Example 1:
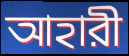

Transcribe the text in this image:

আহারী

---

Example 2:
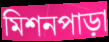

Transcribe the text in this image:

মিশনপাড়া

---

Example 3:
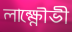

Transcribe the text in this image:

লাক্ষ্ণৌভী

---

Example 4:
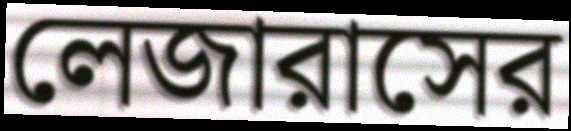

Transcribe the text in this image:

লেজারাসের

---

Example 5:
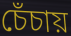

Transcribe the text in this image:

চেঁচায়